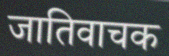
जातिवाचक